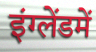
इंग्लेंडमें